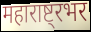
महाराष्ट्रभर